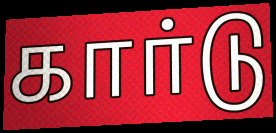
கார்டு